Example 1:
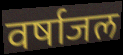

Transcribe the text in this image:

वर्षाजल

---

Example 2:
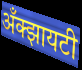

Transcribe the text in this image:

अँक्झायटी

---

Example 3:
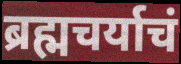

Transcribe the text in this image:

ब्रह्मचर्याचं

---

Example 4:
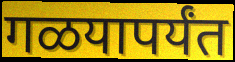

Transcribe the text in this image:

गळयापर्यंत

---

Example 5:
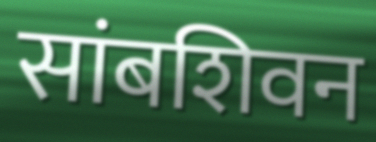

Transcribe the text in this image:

सांबशिवन